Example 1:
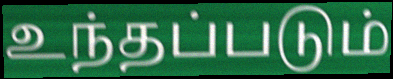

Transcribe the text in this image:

உந்தப்படும்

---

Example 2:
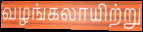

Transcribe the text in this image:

வழங்கலாயிற்று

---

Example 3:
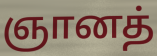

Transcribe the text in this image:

ஞானத்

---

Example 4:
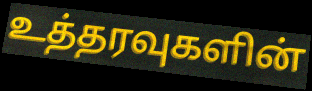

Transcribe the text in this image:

உத்தரவுகளின்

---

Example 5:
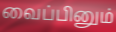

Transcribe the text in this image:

வைப்பினும்